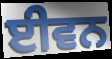
ਈਵਨ